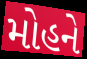
મોહને